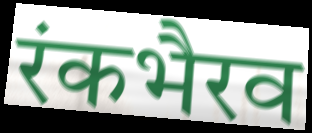
रंकभैरव